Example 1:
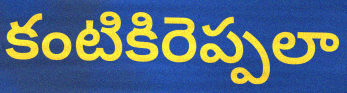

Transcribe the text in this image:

కంటికిరెప్పలా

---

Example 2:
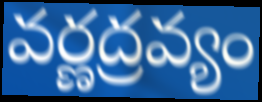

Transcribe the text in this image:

వర్ణద్రవ్యం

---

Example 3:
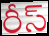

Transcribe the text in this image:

రీస్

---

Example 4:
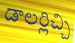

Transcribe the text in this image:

డాలర్లిచ్చి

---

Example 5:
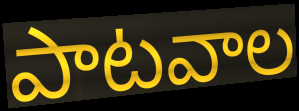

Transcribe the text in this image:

పాటవాల